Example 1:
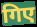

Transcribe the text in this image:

गिए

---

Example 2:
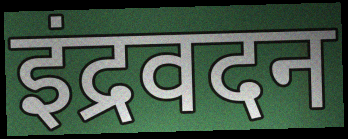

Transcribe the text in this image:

इंद्रवदन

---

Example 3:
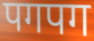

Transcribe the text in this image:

पगपग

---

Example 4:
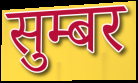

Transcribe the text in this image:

सुम्बर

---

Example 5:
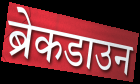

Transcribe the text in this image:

ब्रेकडाउन